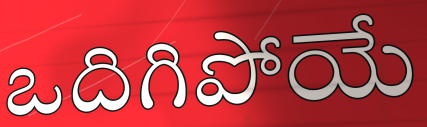
ఒదిగిపోయే